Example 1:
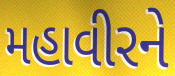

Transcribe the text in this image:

મહાવીરને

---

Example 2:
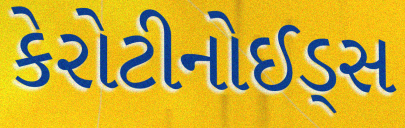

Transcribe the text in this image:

કેરોટીનોઈડ્સ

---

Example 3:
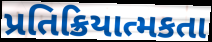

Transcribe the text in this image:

પ્રતિક્રિયાત્મકતા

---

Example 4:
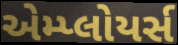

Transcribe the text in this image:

એમ્પ્લોયર્સ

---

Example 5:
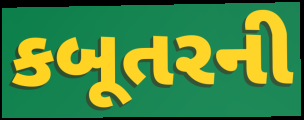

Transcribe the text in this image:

કબૂતરની